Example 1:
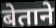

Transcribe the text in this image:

बेताने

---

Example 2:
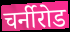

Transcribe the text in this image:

चर्नीरोड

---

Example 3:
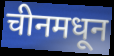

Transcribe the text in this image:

चीनमधून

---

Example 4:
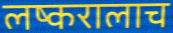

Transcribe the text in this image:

लष्करालाच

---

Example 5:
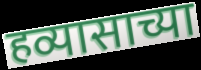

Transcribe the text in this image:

हव्यासाच्या